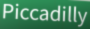
Piccadilly